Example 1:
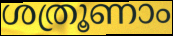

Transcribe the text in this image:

ശത്രൂണാം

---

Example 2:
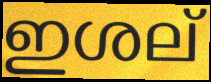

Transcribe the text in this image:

ഇശല്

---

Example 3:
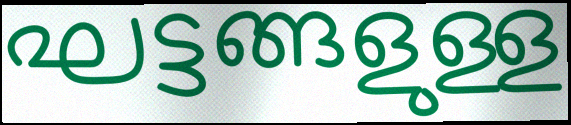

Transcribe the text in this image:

ഘട്ടങ്ങളുള്ള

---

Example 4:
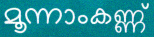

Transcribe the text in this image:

മൂന്നാംകണ്ണ്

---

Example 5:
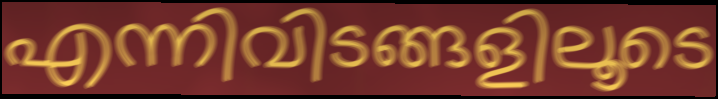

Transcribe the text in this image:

എന്നിവിടങ്ങളിലൂടെ